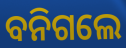
ବନିଗଲେ